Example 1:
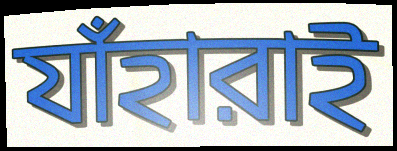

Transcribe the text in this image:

যাঁহারাই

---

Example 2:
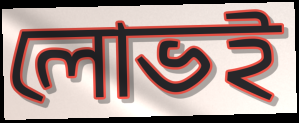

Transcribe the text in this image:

লোভই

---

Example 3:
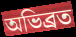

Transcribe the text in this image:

অভিব্রত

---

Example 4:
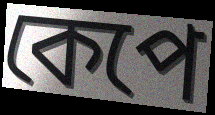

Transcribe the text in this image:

কেপে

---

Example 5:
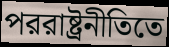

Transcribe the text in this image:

পররাষ্ট্রনীতিতে